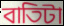
বাতিটা